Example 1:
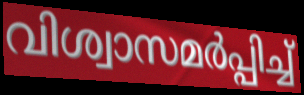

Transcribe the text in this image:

വിശ്വാസമർപ്പിച്ച്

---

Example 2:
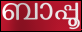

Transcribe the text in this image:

ബാപ്പൂ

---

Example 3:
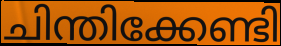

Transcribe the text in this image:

ചിന്തിക്കേണ്ടി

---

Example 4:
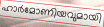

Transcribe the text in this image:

ഹാർമോണിയവുമായി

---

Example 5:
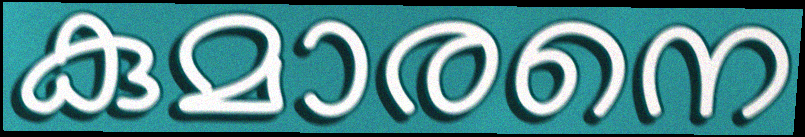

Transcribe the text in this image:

കുമാരനെ